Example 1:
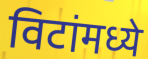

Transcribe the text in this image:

विटांमध्ये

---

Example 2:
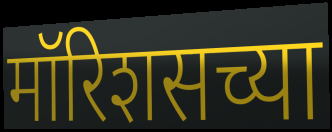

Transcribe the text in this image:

मॉरिशसच्या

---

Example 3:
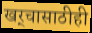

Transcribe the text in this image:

खर्चासाठीही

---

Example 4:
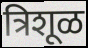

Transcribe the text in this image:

त्रिशूळ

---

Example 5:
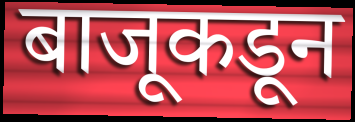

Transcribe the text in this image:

बाजूकडून